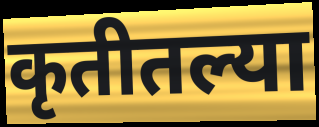
कृतीतल्या